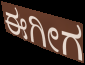
ಈಗೀಗ